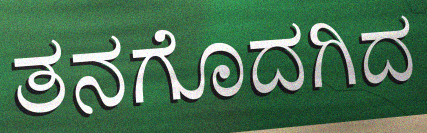
ತನಗೊದಗಿದ